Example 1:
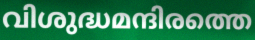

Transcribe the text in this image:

വിശുദ്ധമന്ദിരത്തെ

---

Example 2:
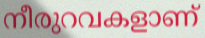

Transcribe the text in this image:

നീരുറവകളാണ്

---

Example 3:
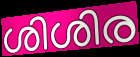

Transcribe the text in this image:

ശിശിര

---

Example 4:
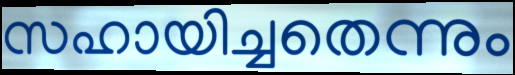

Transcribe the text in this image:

സഹായിച്ചതെന്നും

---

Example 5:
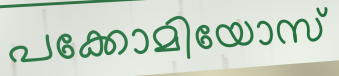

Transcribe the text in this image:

പക്കോമിയോസ്